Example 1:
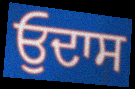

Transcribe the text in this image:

ਓੁਦਾਸ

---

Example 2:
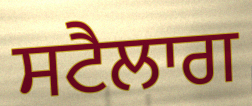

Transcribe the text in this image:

ਸਟੈਲਾਗ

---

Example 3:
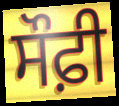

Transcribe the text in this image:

ਸੌਫ਼ੀ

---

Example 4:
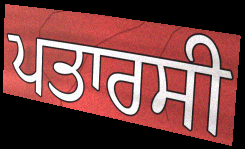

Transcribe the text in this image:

ਪਤਾਰਸੀ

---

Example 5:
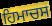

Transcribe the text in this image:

ਹਿਮਾਚਸ